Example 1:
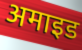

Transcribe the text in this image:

अमाइड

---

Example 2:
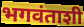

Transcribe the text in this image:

भगवंताशी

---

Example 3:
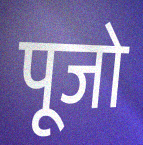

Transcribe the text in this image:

पूजो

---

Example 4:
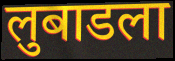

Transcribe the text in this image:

लुबाडला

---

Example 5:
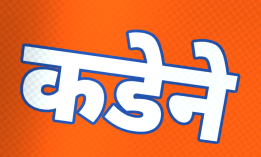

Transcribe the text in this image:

कडेने